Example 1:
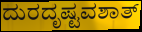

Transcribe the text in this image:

ದುರದೃಷ್ಟವಶಾತ್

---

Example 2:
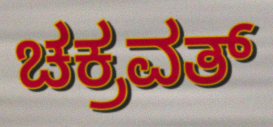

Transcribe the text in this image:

ಚಕ್ರವತ್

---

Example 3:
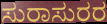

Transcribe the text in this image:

ಸುರಾಸುರರ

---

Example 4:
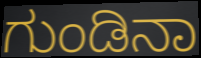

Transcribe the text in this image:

ಗುಂಡಿನಾ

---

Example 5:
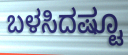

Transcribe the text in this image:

ಬಳಸಿದಷ್ಟೂ